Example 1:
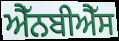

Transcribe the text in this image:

ਐੱਨਬੀਐੱਸ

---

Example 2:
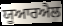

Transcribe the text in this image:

ਯੂਆਰਐਲ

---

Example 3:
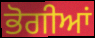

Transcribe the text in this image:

ਭੋਗੀਆਂ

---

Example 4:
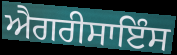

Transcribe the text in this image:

ਐਗਰੀਸਾਇੰਸ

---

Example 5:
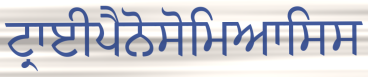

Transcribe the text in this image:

ਟ੍ਰਾਈਪੈਨੋਸੋਮਿਆਸਿਸ